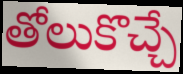
తోలుకొచ్చే